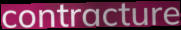
contracture